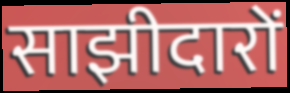
साझीदारों